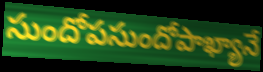
సుందోపసుందోపాఖ్యానే